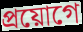
প্রয়োগে